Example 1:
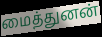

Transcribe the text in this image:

மைத்துனன்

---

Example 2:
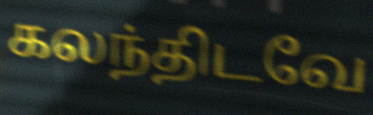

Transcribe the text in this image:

கலந்திடவே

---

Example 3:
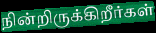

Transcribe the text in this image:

நின்றிருக்கிறீர்கள்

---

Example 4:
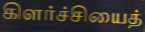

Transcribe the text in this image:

கிளர்ச்சியைத்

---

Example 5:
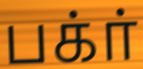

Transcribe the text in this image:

பக்ர்